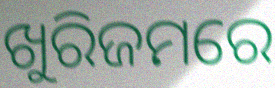
ଖୁରିଜମରେ